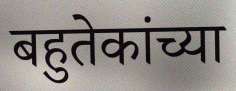
बहुतेकांच्या